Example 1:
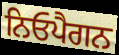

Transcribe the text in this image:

ਨਿਓਪੈਗਨ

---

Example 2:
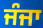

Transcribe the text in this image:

ਜੰਜਾ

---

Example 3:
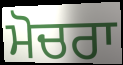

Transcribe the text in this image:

ਮੋਚਰਾ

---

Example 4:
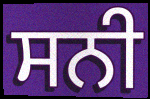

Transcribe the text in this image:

ਸਨੀ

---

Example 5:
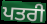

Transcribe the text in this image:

ਪਤਰੀ